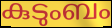
കുടുംബം